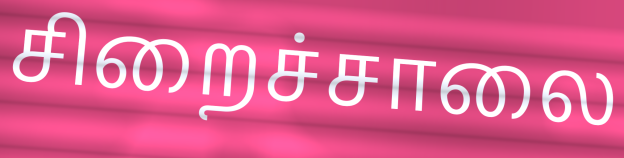
சிறைச்சாலை